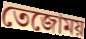
তেজোময়